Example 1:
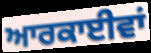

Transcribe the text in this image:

ਆਰਕਾਈਵਾਂ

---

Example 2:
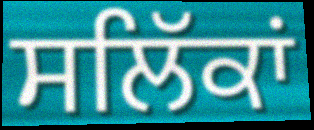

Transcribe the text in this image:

ਸਲਿੱਕਾਂ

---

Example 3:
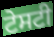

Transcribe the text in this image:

ਟੇਸਟੀ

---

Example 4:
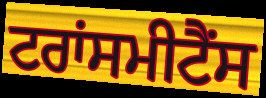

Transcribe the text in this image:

ਟਰਾਂਸਮੀਟੈਂਸ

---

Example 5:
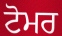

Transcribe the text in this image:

ਟੋਮਰ